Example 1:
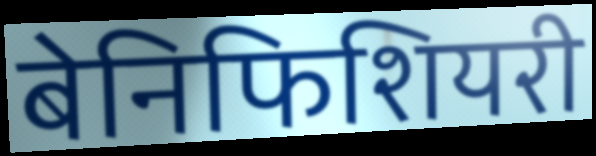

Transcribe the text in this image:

बेनिफिशियरी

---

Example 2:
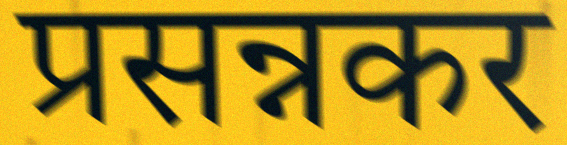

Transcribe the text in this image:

प्रसन्नकर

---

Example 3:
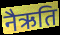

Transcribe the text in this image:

नैऋति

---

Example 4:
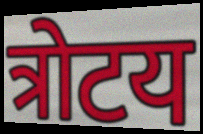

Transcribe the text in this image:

त्रोटय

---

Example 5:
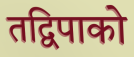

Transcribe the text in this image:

तद्विपाको